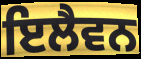
ਇਲੈਵਨ